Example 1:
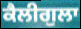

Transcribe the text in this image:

ਕੈਲੀਗੁਲਾ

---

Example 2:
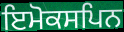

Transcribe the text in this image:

ਇਮੋਕਸਪਿਨ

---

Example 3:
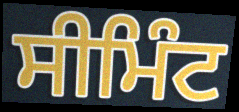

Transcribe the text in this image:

ਸੀਮਿੰਟ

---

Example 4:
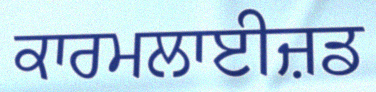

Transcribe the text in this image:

ਕਾਰਮਲਾਈਜ਼ਡ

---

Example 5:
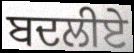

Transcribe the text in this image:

ਬਦਲੀਏ